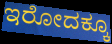
ಇರೋದಕ್ಕೂ